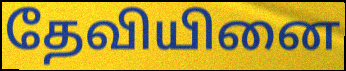
தேவியினை